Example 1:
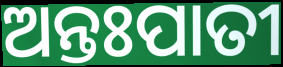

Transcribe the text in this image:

ଅନ୍ତଃପାତୀ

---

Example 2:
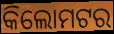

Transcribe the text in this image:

କିଲୋମଟର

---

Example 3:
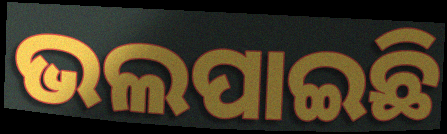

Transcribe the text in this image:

ଭଲପାଇଛି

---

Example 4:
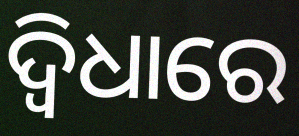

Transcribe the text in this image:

ଦ୍ଵିଧାରେ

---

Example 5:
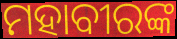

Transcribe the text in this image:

ମହାବୀରଙ୍କ